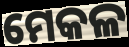
ମେକଳ